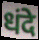
धंदे